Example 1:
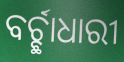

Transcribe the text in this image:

ବର୍ଚ୍ଛାଧାରୀ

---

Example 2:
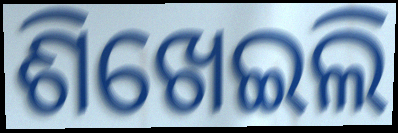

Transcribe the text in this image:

ଶିଖେଇଲି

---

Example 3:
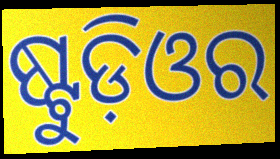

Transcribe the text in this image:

ଷ୍ଟୁଡ଼ିଓର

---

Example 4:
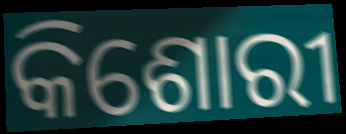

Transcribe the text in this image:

କିଶୋରୀ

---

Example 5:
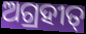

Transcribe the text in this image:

ଅଗ୍ରହୀତ୍